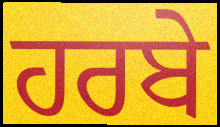
ਹਰਬੇ